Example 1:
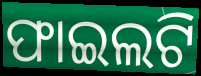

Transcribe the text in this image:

ଫାଇଲଟି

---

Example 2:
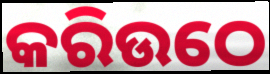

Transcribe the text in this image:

କରିଉଠେ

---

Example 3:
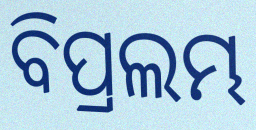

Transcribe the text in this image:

ବିପ୍ରଲମ୍ଭ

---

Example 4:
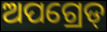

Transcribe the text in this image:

ଅପଗ୍ରେଡ୍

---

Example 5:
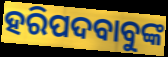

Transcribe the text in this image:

ହରିପଦବାବୁଙ୍କ